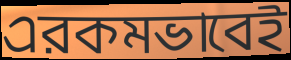
এরকমভাবেই